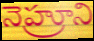
నెహ్రూని